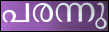
പരന്നു